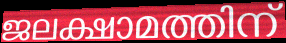
ജലക്ഷാമത്തിന്